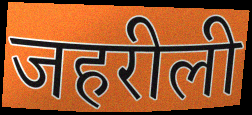
जहरीली